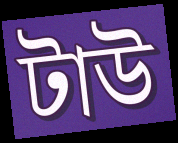
টাউ